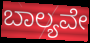
ಬಾಲ್ಯವೇ